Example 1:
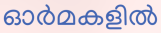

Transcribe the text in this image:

ഓർമകളിൽ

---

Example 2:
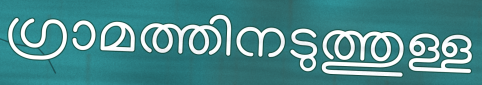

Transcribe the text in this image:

ഗ്രാമത്തിനടുത്തുള്ള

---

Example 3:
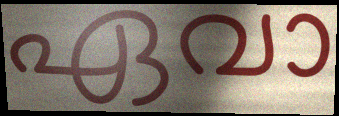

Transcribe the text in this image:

ഏവാ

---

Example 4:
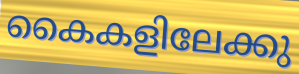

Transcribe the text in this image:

കൈകളിലേക്കു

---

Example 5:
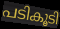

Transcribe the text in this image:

പടികൂടി